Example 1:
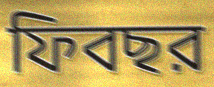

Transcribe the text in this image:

ফিবছর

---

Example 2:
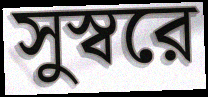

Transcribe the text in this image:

সুস্বরে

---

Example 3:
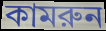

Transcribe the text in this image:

কামরুন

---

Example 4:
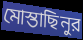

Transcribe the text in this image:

মোস্তাছিনুর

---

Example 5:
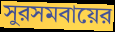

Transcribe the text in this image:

সুরসমবায়ের